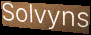
Solvyns